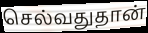
செல்வதுதான்